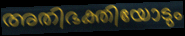
അതിഭക്തിയോടും